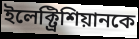
ইলেক্ট্রিশিয়ানকে